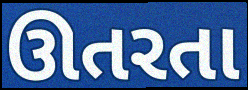
ઊતરતા